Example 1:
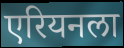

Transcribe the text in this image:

एरियनला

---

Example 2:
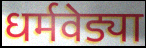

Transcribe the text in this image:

धर्मवेड्या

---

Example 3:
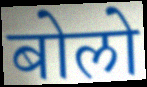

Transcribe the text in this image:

बोलो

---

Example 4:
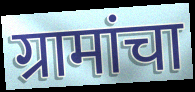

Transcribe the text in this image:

ग्रामांचा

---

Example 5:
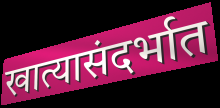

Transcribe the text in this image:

खात्यासंदर्भात